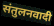
संतुलनवादी